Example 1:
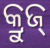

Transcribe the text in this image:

କ୍ରୁଜ୍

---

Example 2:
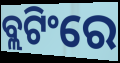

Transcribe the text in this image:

ବ୍ଲଟିଂରେ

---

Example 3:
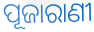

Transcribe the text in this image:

ପୂଜାରାଣୀ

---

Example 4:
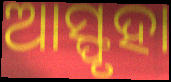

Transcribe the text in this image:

ଆସ୍ଫୃହା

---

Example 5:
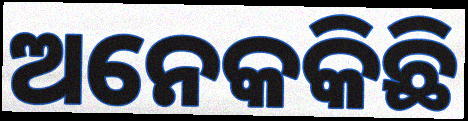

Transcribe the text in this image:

ଅନେକକିଛି